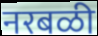
नरबळी